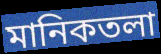
মানিকতলা